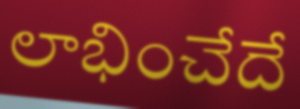
లాభించేదే